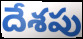
దేశపు